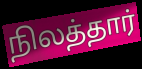
நிலத்தார்